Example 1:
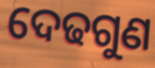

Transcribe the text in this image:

ଦେଢଗୁଣ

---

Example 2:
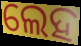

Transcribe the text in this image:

ଲେହ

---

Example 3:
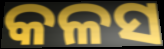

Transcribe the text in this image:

କଳସ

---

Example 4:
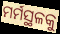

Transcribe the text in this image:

ମର୍ମସ୍ଥଳକୁ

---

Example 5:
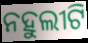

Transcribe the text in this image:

ନହୁଲୀଟି